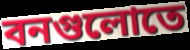
বনগুলোতে